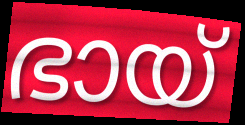
ഭായ്